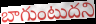
బాగుంటుదని